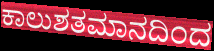
ಕಾಲುಶತಮಾನದಿಂದ